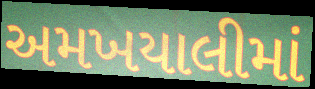
અમખયાલીમાં